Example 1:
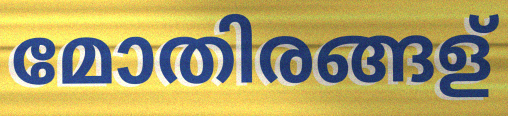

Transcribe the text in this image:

മോതിരങ്ങള്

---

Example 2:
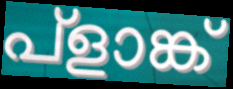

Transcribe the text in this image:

പ്ളാങ്ക്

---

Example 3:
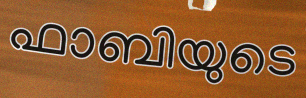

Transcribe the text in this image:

ഫാബിയുടെ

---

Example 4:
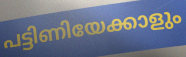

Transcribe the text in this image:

പട്ടിണിയേക്കാളും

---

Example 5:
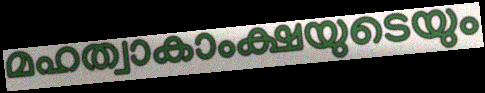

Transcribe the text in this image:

മഹത്വാകാംക്ഷയുടെയും